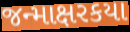
જન્માક્ષરકયા